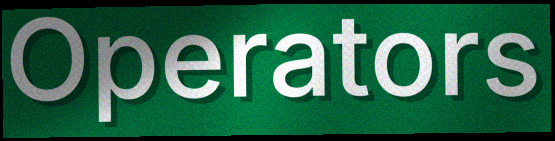
Operators